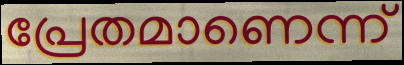
പ്രേതമാണെന്ന്